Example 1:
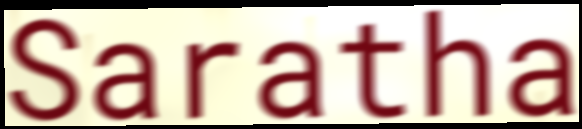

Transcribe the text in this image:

Saratha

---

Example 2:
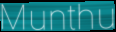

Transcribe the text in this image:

Munthu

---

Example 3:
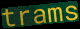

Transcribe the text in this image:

trams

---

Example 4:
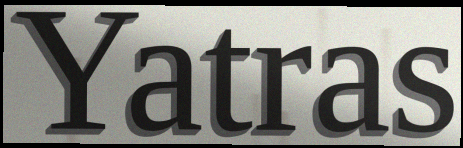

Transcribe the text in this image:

Yatras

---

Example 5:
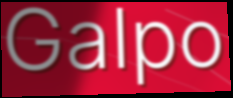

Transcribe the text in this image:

Galpo